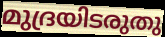
മുദ്രയിടരുതു